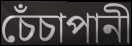
চেঁচাপানী